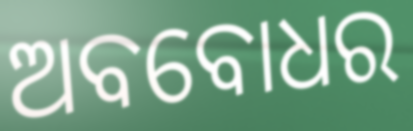
ଅବବୋଧର